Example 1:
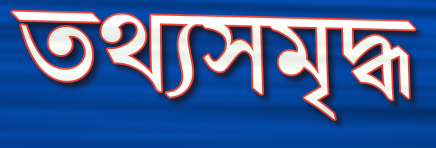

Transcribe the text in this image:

তথ্যসমৃদ্ধ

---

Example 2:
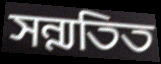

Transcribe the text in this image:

সন্মতিত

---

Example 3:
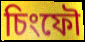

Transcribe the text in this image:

চিংফৌ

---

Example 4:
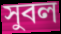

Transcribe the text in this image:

সুবল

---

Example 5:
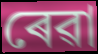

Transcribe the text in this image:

ৰেৱা